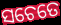
ସଚେତେ